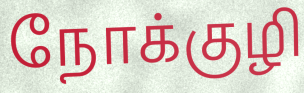
நோக்குழி